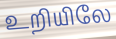
உறியிலே